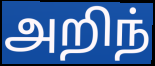
அறிந்